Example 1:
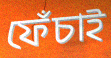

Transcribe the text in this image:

ফেঁচাই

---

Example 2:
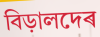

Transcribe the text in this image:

বিড়ালদেৰ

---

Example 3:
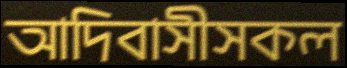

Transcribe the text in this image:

আদিবাসীসকল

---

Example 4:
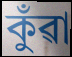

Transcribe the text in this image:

কুঁৱা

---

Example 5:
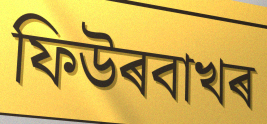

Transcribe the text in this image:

ফিউৰবাখৰ